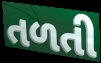
તળતી